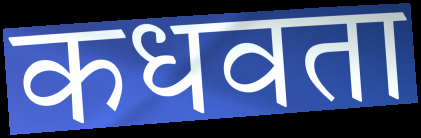
कधवता